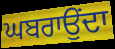
ਘਬਰਾਉਂਦਾ